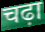
चढ़ा